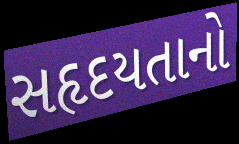
સહૃદયતાનો